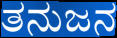
ತನುಜನ